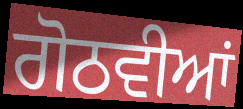
ਗੋਠਵੀਆਂ